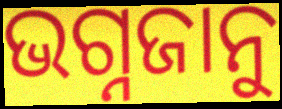
ଭଗ୍ନଜାନୁ